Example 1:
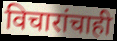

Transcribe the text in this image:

विचारांचाही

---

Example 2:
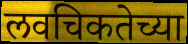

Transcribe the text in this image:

लवचिकतेच्या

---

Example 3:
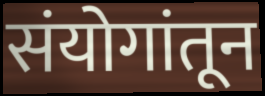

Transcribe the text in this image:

संयोगांतून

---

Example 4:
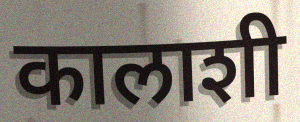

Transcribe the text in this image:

कालाशी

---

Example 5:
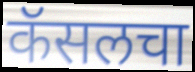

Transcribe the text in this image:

कॅसलचा